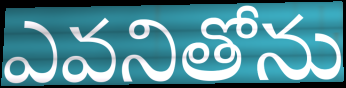
ఎవనితోను